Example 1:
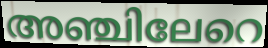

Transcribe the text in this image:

അഞ്ചിലേറെ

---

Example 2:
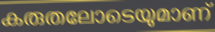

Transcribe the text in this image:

കരുതലോടെയുമാണ്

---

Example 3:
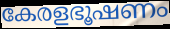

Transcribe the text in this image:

കേരളഭൂഷണം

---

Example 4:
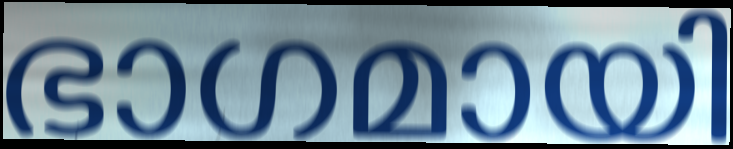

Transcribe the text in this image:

ഭാഗമായി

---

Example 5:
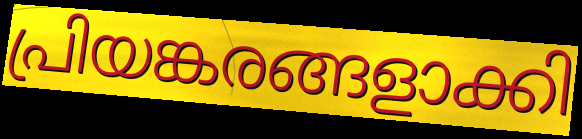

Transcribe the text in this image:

പ്രിയങ്കരങ്ങളാക്കി